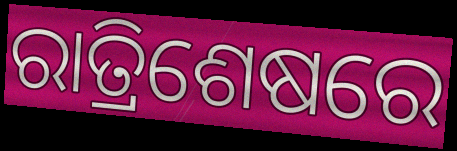
ରାତ୍ରିଶେଷରେ